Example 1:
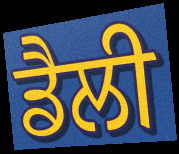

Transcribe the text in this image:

ਡੈਲੀ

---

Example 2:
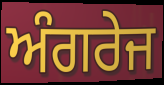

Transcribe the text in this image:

ਅੰਗਰੇਜ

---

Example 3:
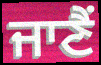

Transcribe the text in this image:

ਜਾਣੈਂ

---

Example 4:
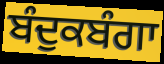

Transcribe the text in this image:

ਬੰਦੁਕਬੰਗਾ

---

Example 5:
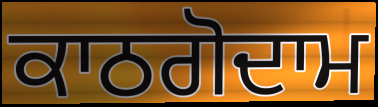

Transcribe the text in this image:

ਕਾਠਗੋਦਾਮ